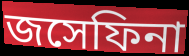
জসেফিনা